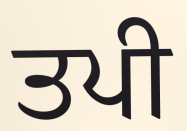
ਤਪੀ